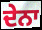
ਦੇਨਾ